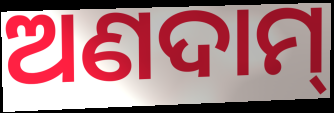
ଅଣଦାମ୍